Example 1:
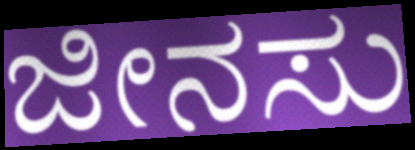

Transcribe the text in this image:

ಜೀನಸು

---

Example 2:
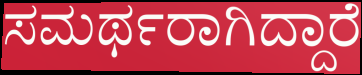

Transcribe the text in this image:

ಸಮರ್ಥರಾಗಿದ್ದಾರೆ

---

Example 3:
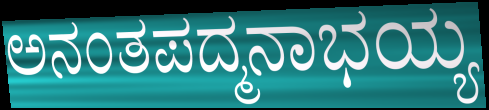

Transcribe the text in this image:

ಅನಂತಪದ್ಮನಾಭಯ್ಯ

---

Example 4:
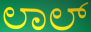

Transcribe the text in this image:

ಲಾಲ್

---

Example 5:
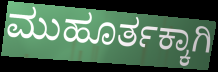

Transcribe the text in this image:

ಮುಹೂರ್ತಕ್ಕಾಗಿ